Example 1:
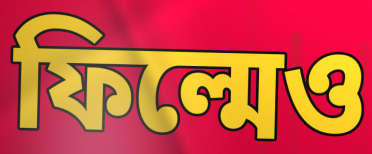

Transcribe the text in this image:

ফিল্মেও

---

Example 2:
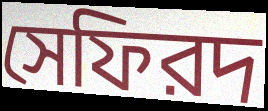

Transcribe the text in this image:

সেফিরদ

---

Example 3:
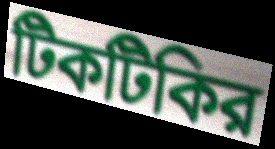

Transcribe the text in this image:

টিকটিকির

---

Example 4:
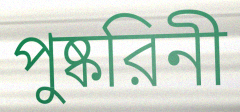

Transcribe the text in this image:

পুষ্করিনী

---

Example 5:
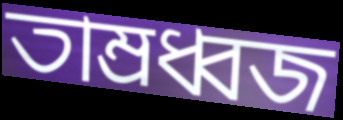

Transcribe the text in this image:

তাম্রধ্বজ